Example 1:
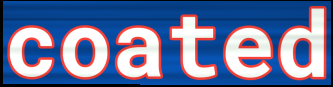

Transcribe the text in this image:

coated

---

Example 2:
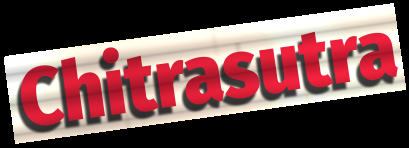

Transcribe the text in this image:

Chitrasutra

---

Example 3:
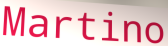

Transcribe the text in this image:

Martino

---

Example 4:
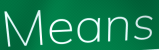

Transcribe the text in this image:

Means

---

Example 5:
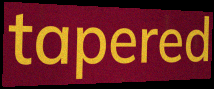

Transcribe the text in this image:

tapered